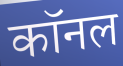
कॉनल